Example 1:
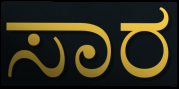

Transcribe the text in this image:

ಸಾರ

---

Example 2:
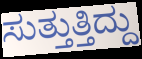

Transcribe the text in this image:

ಸುತ್ತುತ್ತಿದ್ದು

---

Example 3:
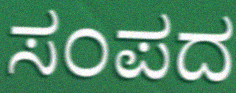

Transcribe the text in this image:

ಸಂಪದ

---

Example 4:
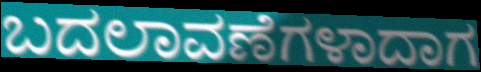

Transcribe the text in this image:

ಬದಲಾವಣೆಗಳಾದಾಗ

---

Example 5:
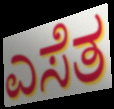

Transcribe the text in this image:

ಎಸೆತ